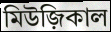
মিউজ়িকাল